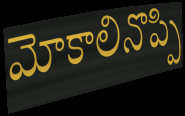
మోకాలినొప్పి